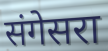
संगेसरा